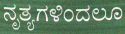
ನೃತ್ಯಗಳಿಂದಲೂ